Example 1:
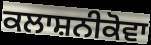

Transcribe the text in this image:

ਕਲਾਸ਼ਨੀਕੋਵਾ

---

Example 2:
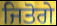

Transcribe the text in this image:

ਜਿਤੋਗੇ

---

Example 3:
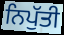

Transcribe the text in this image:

ਨਿਪੁੱਤੀ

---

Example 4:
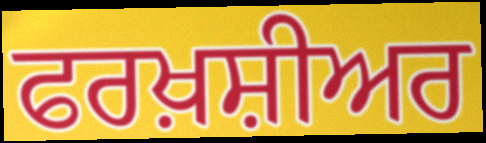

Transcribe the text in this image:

ਫਰਖ਼ਸ਼ੀਅਰ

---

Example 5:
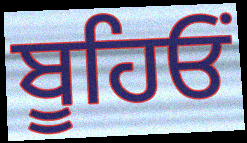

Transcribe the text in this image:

ਬੂਹਿਓਂ